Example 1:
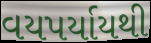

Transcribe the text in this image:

વયપર્યાયથી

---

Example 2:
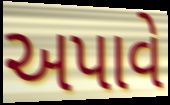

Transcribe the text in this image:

અપાવે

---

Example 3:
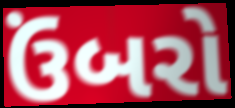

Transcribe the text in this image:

ઉંબરો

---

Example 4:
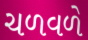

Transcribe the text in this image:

ચળવળે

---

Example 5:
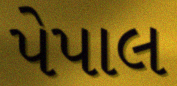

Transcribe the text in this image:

પેપાલ